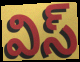
విస్